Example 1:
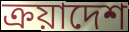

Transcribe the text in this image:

ক্রয়াদেশ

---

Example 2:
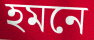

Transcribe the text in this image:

হমনে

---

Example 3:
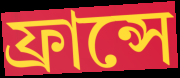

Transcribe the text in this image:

ফ্রান্সে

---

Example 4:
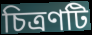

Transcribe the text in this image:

চিত্রণটি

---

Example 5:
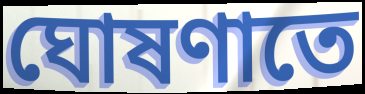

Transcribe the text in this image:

ঘোষণাতে